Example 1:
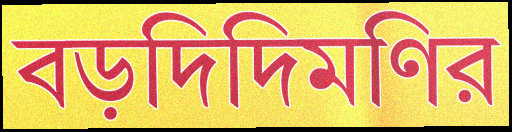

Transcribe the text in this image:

বড়দিদিমণির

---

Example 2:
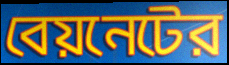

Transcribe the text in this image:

বেয়নেটের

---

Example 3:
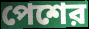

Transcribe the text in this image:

পেশের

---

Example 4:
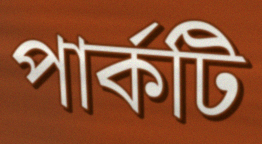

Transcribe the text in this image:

পার্কটি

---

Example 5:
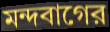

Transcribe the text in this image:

মন্দবাগের